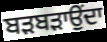
ਬੜਬੜਾਉਂਦਾ